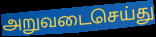
அறுவடைசெய்து